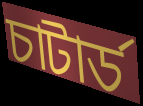
চাটার্ড